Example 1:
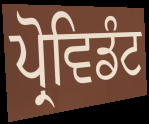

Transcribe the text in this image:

ਪ੍ਰੋਵਿਡੰਟ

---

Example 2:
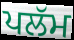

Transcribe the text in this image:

ਪਲੱਮ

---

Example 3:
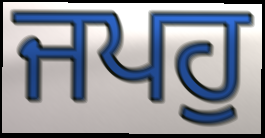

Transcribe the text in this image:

ਜਪਹੁ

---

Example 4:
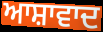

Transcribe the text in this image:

ਆਸ਼ਾਵਾਦ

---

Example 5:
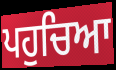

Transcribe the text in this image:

ਪਹੁਚਿਆ